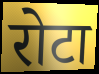
रोटा